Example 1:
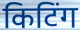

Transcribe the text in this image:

किटिंग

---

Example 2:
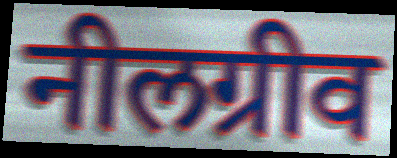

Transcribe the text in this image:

नीलग्रीव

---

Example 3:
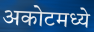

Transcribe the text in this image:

अकोटमध्ये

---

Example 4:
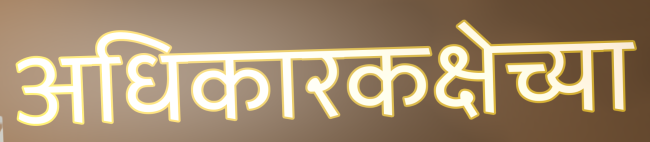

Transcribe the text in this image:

अधिकारकक्षेच्या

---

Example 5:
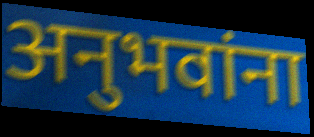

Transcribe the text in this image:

अनुभवांना